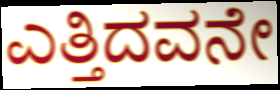
ಎತ್ತಿದವನೇ